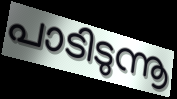
പാടിടുന്നൂ